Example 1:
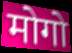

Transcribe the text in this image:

मोगो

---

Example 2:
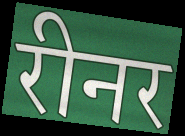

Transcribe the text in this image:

रीनर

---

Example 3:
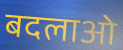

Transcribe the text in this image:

बदलाओ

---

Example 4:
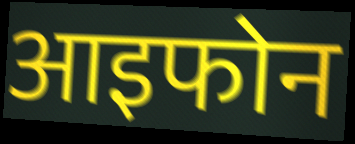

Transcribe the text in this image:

आइफोन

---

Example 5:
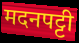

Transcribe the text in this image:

मदनपट्टी